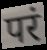
परं